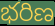
భరిణ